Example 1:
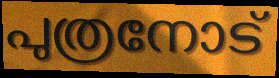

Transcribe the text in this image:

പുത്രനോട്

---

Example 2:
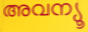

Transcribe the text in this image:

അവന്യൂ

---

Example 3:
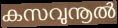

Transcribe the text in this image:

കസവുനൂൽ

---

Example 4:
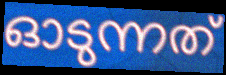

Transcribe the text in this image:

ഓടുന്നത്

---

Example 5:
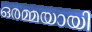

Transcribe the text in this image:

ഒരമ്മയായി